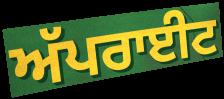
ਅੱਪਰਾਈਟ